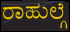
ರಾಹುಲ್ಗೆ